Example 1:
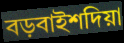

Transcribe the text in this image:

বড়বাইশদিয়া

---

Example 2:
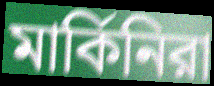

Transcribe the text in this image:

মার্কিনিরা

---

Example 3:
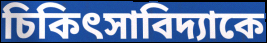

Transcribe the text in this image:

চিকিৎসাবিদ্যাকে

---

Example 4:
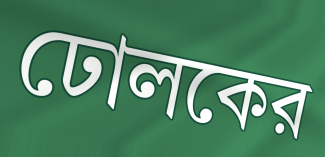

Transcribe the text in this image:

ঢোলকের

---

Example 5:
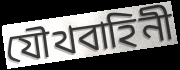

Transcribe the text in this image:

যৌথবাহিনী